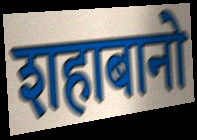
शहाबानो